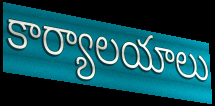
కార్యాలయాలు